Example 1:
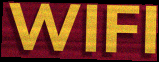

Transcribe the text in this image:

WIFI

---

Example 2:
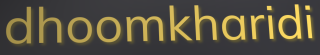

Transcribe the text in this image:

dhoomkharidi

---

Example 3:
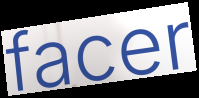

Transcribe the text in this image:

facer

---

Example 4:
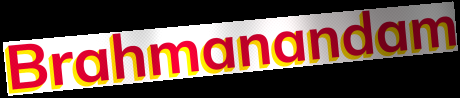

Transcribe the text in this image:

Brahmanandam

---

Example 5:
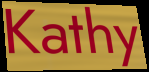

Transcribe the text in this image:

Kathy